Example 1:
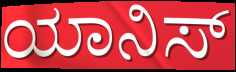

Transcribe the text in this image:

ಯಾನಿಸ್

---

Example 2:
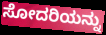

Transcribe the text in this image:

ಸೋದರಿಯನ್ನು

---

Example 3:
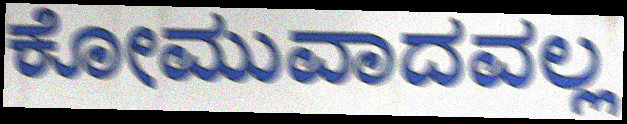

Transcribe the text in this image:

ಕೋಮುವಾದವಲ್ಲ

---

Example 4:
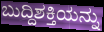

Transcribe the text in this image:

ಬುದ್ದಿಶಕ್ತಿಯನ್ನು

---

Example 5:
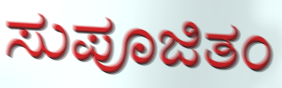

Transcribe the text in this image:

ಸುಪೂಜಿತಂ